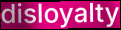
disloyalty